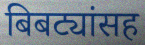
बिबट्यांसह